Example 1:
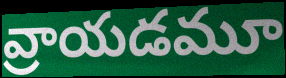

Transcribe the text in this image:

వ్రాయడమూ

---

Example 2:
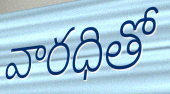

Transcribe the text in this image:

వారధితో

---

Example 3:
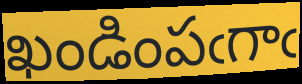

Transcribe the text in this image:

ఖండింపఁగాఁ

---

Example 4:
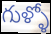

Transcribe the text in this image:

గుళ్ళో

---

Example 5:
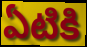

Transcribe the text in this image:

ఏటికి